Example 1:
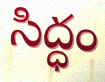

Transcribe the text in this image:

సిద్ధం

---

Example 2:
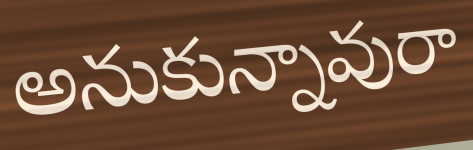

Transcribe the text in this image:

అనుకున్నావురా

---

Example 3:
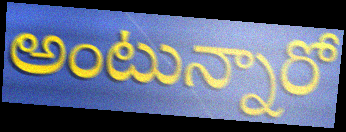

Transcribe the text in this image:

అంటున్నారో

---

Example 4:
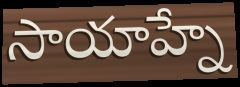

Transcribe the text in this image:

సాయాహ్నే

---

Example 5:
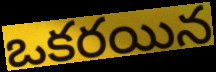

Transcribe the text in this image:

ఒకరయిన